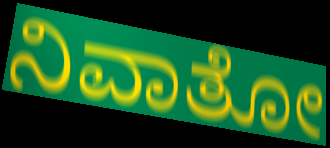
ನಿವಾತೋ